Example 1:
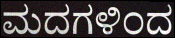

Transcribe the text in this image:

ಮದಗಳಿಂದ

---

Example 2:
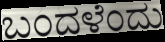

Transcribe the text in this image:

ಬಂದಳೆಂದು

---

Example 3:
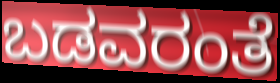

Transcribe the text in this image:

ಬಡವರಂತೆ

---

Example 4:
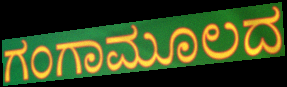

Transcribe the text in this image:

ಗಂಗಾಮೂಲದ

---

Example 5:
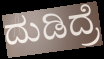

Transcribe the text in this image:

ದುಡಿದ್ರೆ